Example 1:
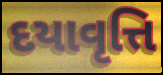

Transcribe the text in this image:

દયાવૃત્તિ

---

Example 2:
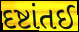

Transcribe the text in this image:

દષ્ટાંતઈ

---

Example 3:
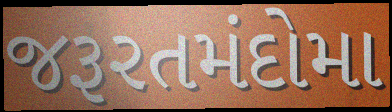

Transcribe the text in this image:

જરૂરતમંદોમા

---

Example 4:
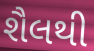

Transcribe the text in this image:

શૈલથી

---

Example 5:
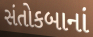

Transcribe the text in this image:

સંતોકબાનાં